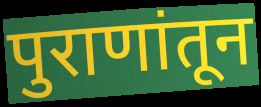
पुराणांतून